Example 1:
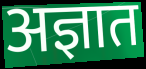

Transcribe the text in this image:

अज्ञात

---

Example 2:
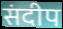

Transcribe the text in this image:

संदीप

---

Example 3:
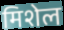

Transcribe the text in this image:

मिशेल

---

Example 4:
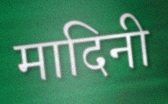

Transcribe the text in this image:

मादिनी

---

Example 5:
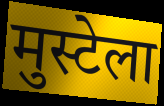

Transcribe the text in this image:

मुस्टेला